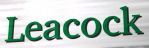
Leacock